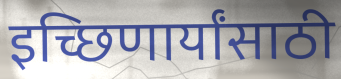
इच्छिणार्यांसाठी